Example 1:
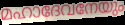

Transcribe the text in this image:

മഹാദേവനേയും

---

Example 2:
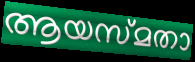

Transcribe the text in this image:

ആയസ്മതാ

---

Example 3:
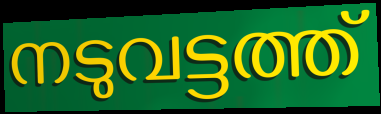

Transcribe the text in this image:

നടുവട്ടത്ത്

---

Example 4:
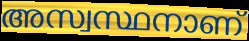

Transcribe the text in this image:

അസ്വസ്ഥനാണ്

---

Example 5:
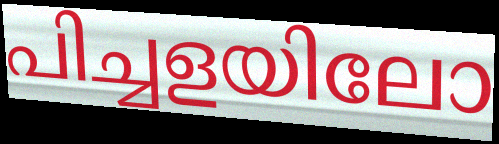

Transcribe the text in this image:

പിച്ചളയിലോ